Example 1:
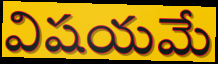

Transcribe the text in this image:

విషయమే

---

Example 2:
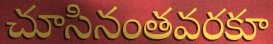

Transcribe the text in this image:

చూసినంతవరకూ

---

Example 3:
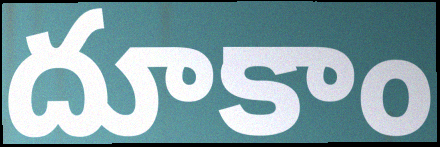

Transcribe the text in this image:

దూకాం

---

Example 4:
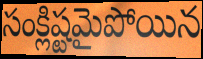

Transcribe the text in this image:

సంక్లిష్టమైపోయిన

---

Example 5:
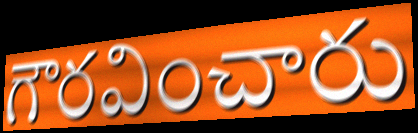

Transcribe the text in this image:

గౌరవించారు